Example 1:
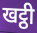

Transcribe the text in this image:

खट्ठी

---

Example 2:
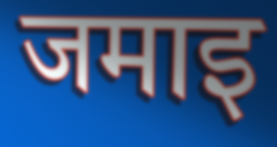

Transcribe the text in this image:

जमाइ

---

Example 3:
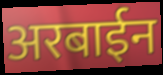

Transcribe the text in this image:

अरबाईन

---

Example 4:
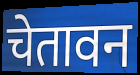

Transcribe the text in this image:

चेतावन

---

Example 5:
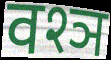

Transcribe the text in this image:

वश्ञ